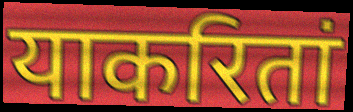
याकरितां